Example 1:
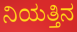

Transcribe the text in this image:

ನಿಯತ್ತಿನ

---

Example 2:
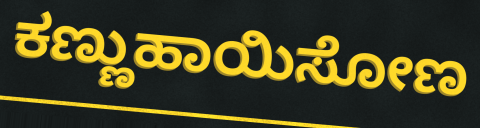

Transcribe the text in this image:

ಕಣ್ಣುಹಾಯಿಸೋಣ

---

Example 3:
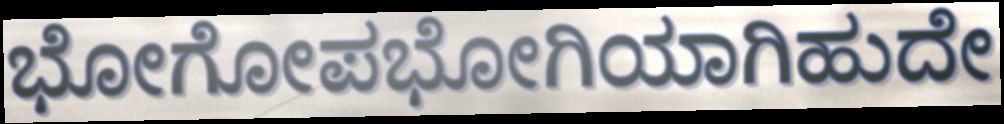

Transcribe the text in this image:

ಭೋಗೋಪಭೋಗಿಯಾಗಿಹುದೇ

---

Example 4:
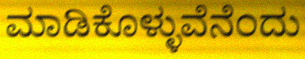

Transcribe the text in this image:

ಮಾಡಿಕೊಳ್ಳುವೆನೆಂದು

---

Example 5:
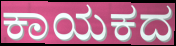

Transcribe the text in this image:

ಕಾಯಕದ